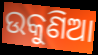
ଉକୁଣିଆ